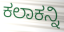
ಕಲಾಕನ್ನಿ